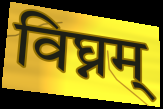
विघ्नम्